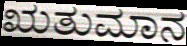
ಋತುಮಾನ